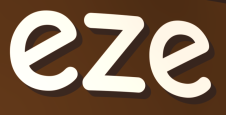
eze